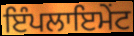
ਇੰਪਲਾਇਮੇਂਟ